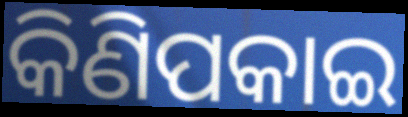
କିଣିପକାଇ